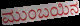
ಮುಂಬಯಿನ